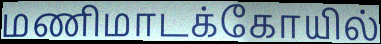
மணிமாடக்கோயில்